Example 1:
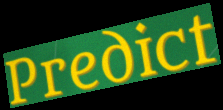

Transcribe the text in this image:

Predict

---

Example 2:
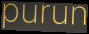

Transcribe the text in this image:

purun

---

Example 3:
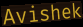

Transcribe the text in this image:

Avishek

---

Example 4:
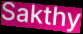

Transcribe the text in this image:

Sakthy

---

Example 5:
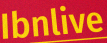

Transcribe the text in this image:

Ibnlive